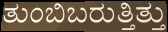
ತುಂಬಿಬರುತ್ತಿತ್ತು